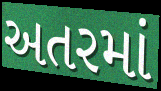
અતરમાં